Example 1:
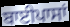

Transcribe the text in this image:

ਬਾਈਪਾਸਾਂ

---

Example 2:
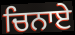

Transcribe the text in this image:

ਚਿਨਾਏ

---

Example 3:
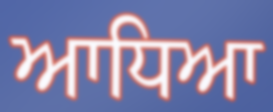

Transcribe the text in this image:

ਆਧਿਆ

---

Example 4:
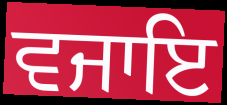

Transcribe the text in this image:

ਵਜਾਇ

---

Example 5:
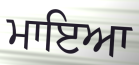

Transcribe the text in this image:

ਮਾਇਆ